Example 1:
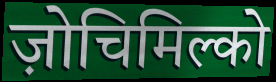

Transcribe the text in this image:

ज़ोचिमिल्को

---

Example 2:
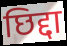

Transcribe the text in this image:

छिद्दा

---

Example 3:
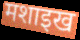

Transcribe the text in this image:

मशाइख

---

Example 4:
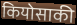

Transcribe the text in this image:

कियोसाकी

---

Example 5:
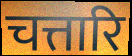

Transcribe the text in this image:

चत्तारि